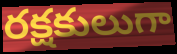
రక్షకులుగా